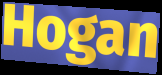
Hogan